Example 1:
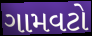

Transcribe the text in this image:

ગામવટો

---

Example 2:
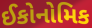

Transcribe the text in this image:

ઈકોનોમિક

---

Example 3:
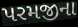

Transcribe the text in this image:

પરમજીના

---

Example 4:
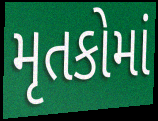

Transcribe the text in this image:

મૃતકોમાં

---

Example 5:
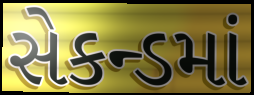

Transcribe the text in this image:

સેકન્ડમાં